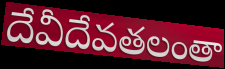
దేవీదేవతలంతా